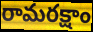
రామరక్షాం